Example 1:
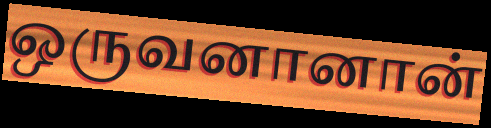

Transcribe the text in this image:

ஒருவனானான்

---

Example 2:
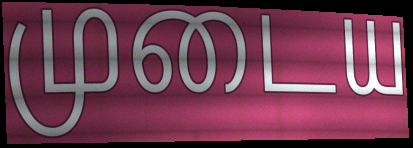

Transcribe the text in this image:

முடைய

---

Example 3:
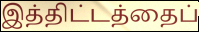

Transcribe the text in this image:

இத்திட்டத்தைப்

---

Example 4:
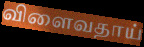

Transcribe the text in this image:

விளைவதாய்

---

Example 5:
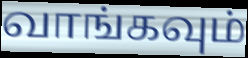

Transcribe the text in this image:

வாங்கவும்